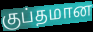
குப்தமான